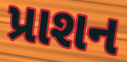
પ્રાશન